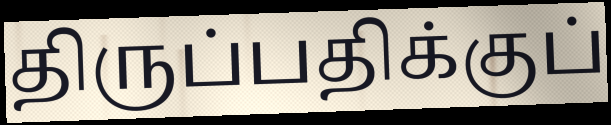
திருப்பதிக்குப்